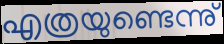
എത്രയുണ്ടെന്നു്